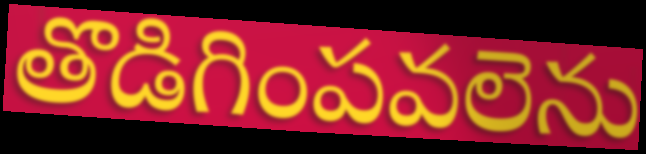
తొడిగింపవలెను